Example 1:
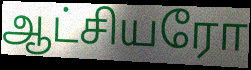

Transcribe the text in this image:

ஆட்சியரோ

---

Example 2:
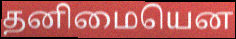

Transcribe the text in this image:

தனிமையென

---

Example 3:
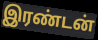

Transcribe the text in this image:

இரண்டன்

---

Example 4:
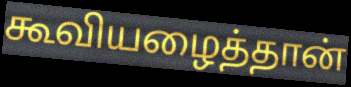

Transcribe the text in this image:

கூவியழைத்தான்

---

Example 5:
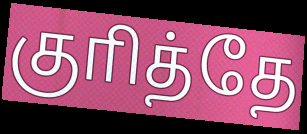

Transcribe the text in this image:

குரித்தே